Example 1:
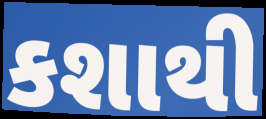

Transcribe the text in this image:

કશાથી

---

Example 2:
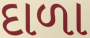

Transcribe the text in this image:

દાળા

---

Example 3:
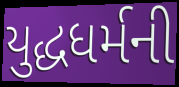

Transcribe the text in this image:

યુદ્ધધર્મની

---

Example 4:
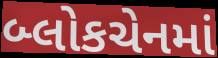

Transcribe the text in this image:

બ્લોકચેનમાં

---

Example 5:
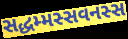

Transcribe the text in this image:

સદ્ધમ્મસ્સવનસ્સ